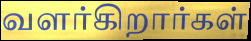
வளர்கிறார்கள்